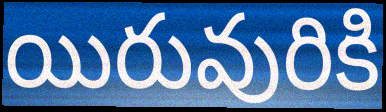
యిరువురికి